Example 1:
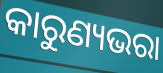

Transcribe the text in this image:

କାରୁଣ୍ୟଭରା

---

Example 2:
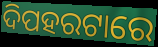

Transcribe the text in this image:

ଦିପହରଟାରେ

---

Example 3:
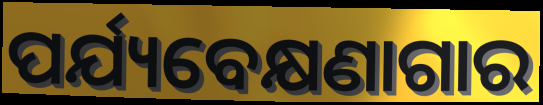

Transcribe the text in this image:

ପର୍ଯ୍ୟବେକ୍ଷଣାଗାର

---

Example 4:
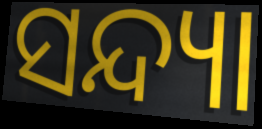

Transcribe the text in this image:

ସନ୍ଦ୍ୟା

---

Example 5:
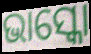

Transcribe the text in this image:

ଭାସ୍କୋ